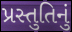
પ્રસ્તુતિનું